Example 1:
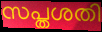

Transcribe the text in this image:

സപ്തശതി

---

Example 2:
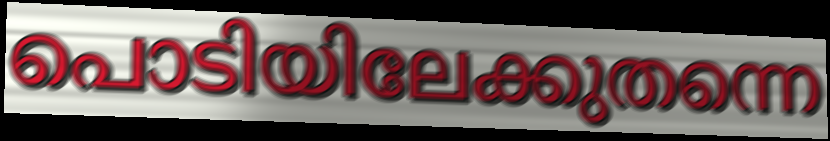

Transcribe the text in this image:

പൊടിയിലേക്കുതന്നെ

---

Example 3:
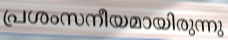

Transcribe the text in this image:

പ്രശംസനീയമായിരുന്നു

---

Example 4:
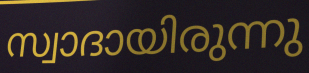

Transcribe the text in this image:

സ്വാദായിരുന്നു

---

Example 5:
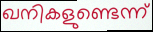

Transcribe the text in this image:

ഖനികളുണ്ടെന്ന്